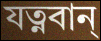
যত্নবান্